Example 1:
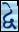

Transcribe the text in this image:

દ્વે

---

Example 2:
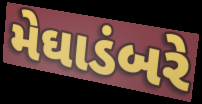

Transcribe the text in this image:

મેઘાડંબરે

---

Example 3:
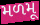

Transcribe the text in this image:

મળમૂ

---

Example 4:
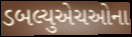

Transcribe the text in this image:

ડબલ્યુએચઓના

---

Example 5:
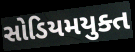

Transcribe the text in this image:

સોડિયમયુક્ત